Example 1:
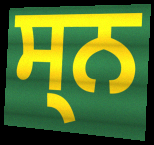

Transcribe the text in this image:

ਸ੍ਨ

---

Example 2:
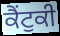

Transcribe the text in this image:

ਕੈਂਟੁਕੀ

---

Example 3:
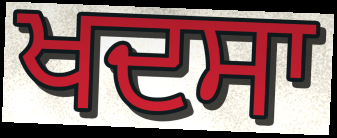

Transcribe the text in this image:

ਖਦਸਾ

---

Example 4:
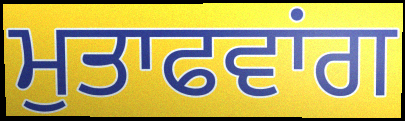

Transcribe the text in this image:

ਮੁਤਾਫਵਾਂਗ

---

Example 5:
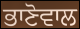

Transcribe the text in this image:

ਭਾਣੋਵਾਲ